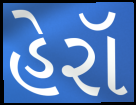
હેરૉ